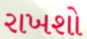
રાખશો